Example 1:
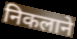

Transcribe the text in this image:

निकलाने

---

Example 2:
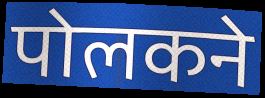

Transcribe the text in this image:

पोलकने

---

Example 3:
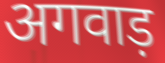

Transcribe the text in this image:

अगवाड़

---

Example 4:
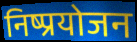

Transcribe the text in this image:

निष्प्रयोजन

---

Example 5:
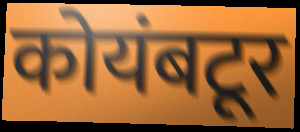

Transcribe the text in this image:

कोयंबटूर